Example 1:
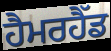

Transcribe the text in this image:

ਹੈਮਰਹੈੱਡ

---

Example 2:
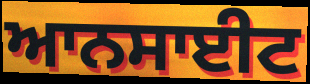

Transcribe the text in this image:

ਆਨਸਾਈਟ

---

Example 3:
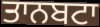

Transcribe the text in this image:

ਤਾਨਬਟਾ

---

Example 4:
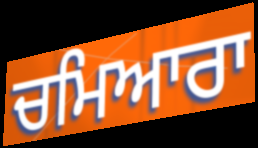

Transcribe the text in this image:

ਚਮਿਆਰਾ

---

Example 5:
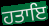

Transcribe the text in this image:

ਹਤਾਇ